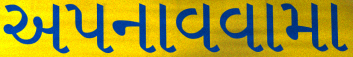
અપનાવવામા